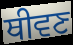
ਥੀਵਣ